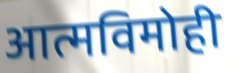
आत्मविमोही